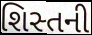
શિસ્તની